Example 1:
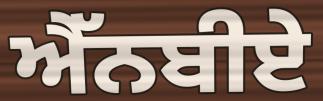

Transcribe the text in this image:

ਐੱਨਬੀਏ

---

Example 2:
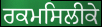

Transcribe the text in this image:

ਰਕਮਸਿਲੀਕੇ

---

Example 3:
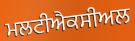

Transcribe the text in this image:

ਮਲਟੀਐਕਸੀਅਲ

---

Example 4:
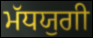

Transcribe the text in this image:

ਮੱਧਯੁਗੀ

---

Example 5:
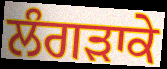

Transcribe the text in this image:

ਲੰਗੜਾਕੇ